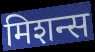
मिशन्स